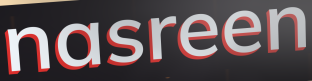
nasreen